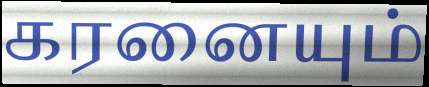
கரனையும்